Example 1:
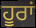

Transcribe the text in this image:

ਹੂਰਾਂ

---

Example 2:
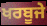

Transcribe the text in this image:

ਖਰਬੂਜੇ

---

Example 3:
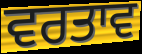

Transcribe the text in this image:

ਵਰਤਾਵ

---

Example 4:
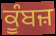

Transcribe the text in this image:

ਕੂੰਬਜ਼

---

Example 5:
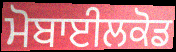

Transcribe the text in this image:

ਮੋਬਾਈਲਕੋਡ